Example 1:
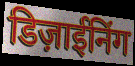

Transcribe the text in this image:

डिज़ाईनिंग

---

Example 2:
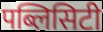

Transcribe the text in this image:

पब्लिसिटी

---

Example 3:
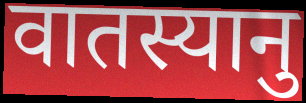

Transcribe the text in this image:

वातस्यानु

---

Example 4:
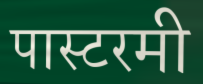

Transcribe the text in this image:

पास्टरमी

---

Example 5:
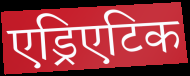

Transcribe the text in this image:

एड्रिएटिक